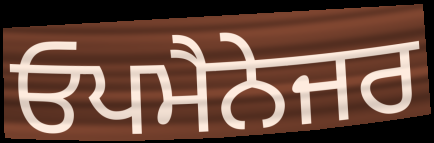
ਓਪਮੈਨੇਜਰ